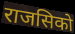
राजसिको